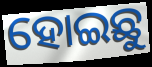
ହୋଇଛୁ